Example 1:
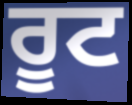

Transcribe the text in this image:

ਰੂਟ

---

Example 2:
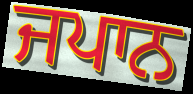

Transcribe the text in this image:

ਜਪਾਨ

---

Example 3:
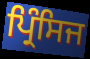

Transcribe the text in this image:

ਪ੍ਰਿੰਸਿਜ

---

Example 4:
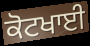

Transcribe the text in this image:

ਕੋਟਖਾਈ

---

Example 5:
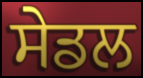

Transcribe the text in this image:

ਸੇਡਲ